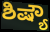
ಶಿಷ್ಯೌ